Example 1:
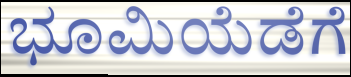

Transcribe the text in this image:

ಭೂಮಿಯೆಡೆಗೆ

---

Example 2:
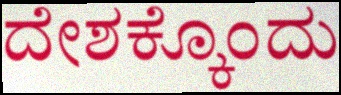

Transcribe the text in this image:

ದೇಶಕ್ಕೊಂದು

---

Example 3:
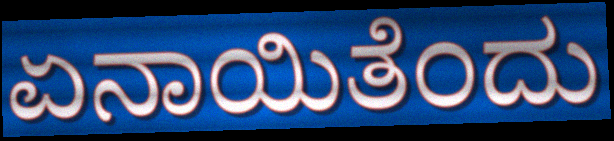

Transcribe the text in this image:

ಏನಾಯಿತೆಂದು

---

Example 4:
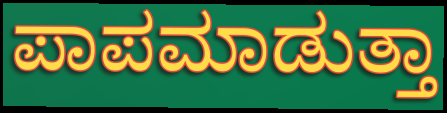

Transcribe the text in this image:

ಪಾಪಮಾಡುತ್ತಾ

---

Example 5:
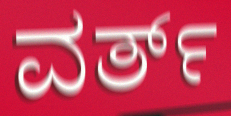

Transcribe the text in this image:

ವರ್ತ್